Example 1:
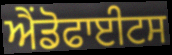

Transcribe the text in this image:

ਐਂਡੋਫਾਈਟਸ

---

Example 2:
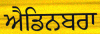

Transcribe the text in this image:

ਐਡਿਨਬਰਾ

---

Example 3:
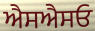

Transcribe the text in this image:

ਐਸਐਸਓ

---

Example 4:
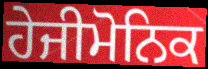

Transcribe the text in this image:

ਹੇਜੀਮੋਨਿਕ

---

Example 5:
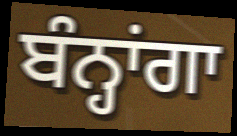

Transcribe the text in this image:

ਬੰਨ੍ਹਾਂਗਾ